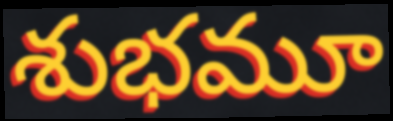
శుభమూ